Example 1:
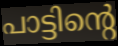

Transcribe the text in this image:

പാട്ടിന്റെ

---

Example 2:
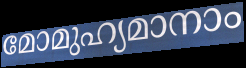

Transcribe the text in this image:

മോമുഹ്യമാനാം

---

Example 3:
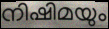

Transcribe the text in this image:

നിഷിമയും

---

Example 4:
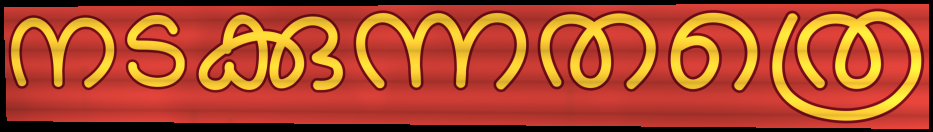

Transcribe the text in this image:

നടക്കുന്നതത്രെ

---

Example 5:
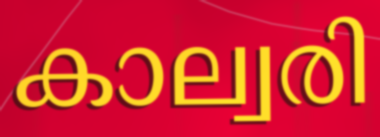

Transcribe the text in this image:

കാല്വരി